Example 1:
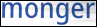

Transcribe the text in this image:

monger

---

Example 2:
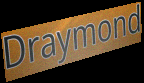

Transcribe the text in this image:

Draymond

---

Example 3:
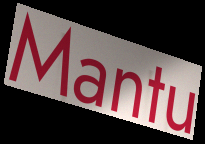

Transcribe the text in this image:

Mantu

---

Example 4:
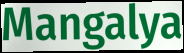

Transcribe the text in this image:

Mangalya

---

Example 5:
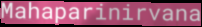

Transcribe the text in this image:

Mahaparinirvana